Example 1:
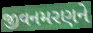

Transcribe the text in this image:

જીવનમરણને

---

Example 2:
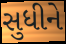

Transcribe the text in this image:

સુધીને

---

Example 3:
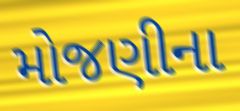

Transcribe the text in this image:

મોજણીના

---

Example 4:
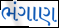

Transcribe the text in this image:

ભંગાણ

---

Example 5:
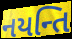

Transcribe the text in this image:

નયન્તિ